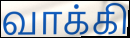
வாக்கி